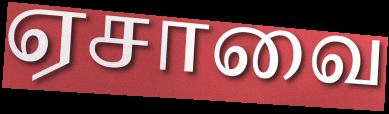
ஏசாவை